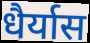
धैर्यास